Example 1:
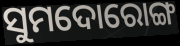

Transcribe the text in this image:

ସୁମଦୋରୋଙ୍ଗ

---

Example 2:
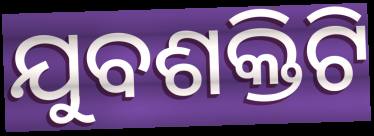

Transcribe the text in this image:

ଯୁବଶକ୍ତିଟି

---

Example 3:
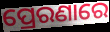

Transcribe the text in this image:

ପ୍ରେରଣାରେ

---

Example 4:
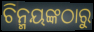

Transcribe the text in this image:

ଚିନ୍ମୟଙ୍କଠାରୁ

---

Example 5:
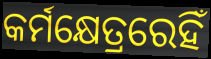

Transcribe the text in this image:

କର୍ମକ୍ଷେତ୍ରରେହିଁ